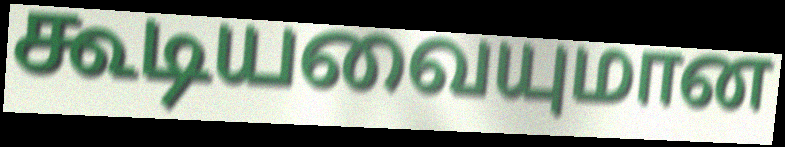
கூடியவையுமான